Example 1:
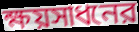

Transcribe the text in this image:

ক্ষয়সাধনের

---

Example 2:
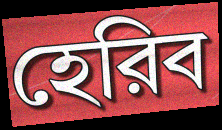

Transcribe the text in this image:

হেরিব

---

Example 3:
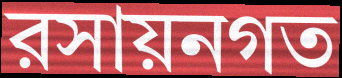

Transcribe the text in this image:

রসায়নগত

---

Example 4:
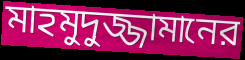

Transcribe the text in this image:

মাহমুদুজ্জামানের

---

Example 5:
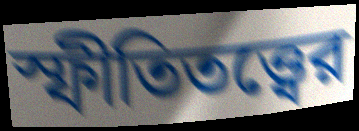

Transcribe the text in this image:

স্ফীতিতত্ত্বের